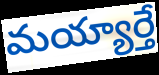
మయ్యార్తే